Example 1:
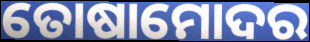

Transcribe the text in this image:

ତୋଷାମୋଦର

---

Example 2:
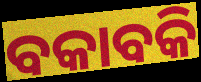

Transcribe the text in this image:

ବକାବକି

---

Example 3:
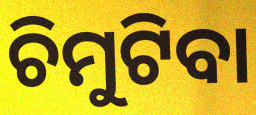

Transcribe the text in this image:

ଚିମୁଟିବା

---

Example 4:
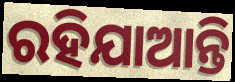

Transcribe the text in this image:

ରହିଯାଆନ୍ତି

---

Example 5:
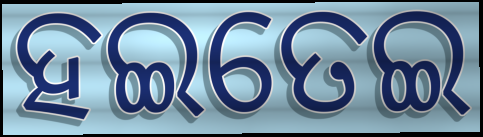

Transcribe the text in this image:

ହଇତେଇ